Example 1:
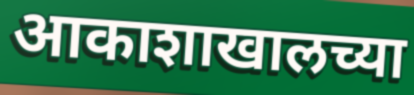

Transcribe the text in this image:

आकाशाखालच्या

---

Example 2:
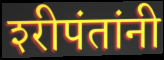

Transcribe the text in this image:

श्रीपंतांनी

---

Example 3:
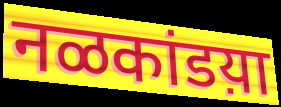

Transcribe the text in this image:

नळकांडय़ा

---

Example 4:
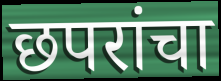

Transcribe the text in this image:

छपरांचा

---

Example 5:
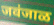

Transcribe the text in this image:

जवंजाळ